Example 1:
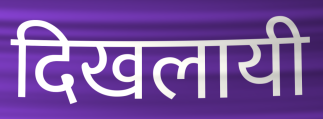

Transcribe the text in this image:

दिखलायी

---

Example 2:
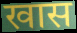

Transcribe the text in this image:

खास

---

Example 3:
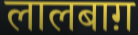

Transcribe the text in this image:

लालबाग़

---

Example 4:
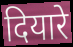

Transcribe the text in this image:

दियारे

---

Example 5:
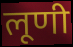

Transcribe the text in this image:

लूणी